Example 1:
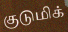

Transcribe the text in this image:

குடுமிக்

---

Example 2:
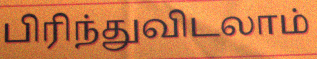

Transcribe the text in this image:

பிரிந்துவிடலாம்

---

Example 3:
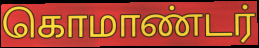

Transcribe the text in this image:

கொமாண்டர்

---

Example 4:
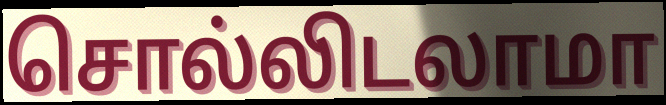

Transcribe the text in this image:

சொல்லிடலாமா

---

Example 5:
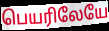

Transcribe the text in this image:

பெயரிலேயே